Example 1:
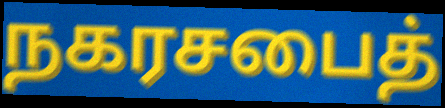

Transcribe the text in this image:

நகரசபைத்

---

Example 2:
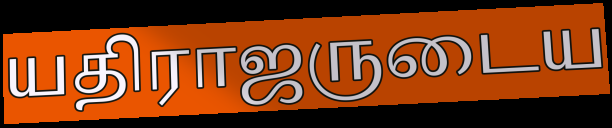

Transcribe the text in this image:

யதிராஜருடைய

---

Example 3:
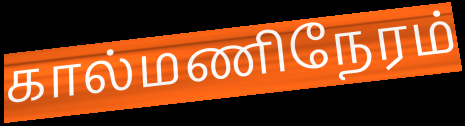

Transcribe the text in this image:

கால்மணிநேரம்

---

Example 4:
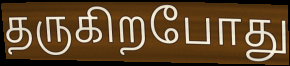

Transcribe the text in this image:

தருகிறபோது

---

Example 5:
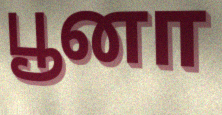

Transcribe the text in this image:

பூனா